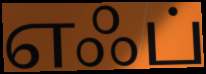
எஃப்